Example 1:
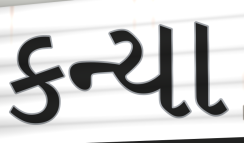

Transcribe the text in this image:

કન્યા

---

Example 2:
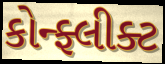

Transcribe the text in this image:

કોન્ફ્લીક્ટ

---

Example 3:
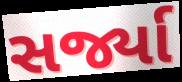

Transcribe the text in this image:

સર્જ્યા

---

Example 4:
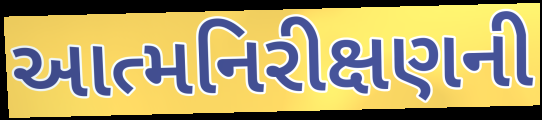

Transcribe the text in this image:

આત્મનિરીક્ષણની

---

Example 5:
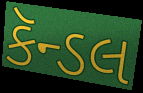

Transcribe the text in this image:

કૅન્ડલ